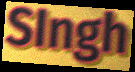
SIngh